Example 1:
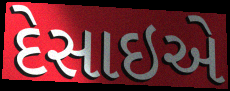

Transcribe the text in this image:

દેસાઇએ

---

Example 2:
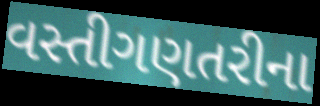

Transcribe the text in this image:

વસ્તીગણતરીના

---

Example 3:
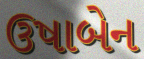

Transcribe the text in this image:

ઉષાબેન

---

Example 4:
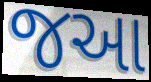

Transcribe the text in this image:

જઆ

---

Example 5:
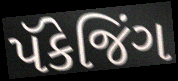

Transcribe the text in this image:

પૅકેજિંગ